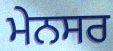
ਮੇਨਸਰ